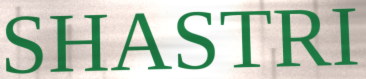
SHASTRI